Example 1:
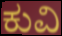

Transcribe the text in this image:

ಕುವಿ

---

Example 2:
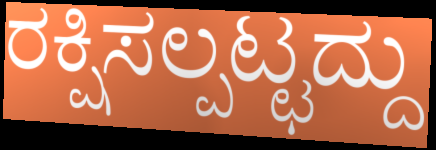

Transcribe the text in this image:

ರಕ್ಷಿಸಲ್ಪಟ್ಟದ್ದು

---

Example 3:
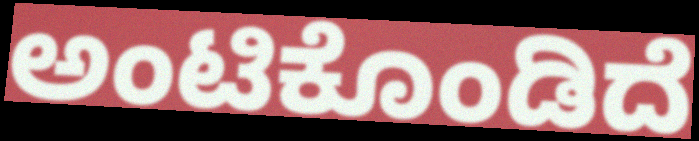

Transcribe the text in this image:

ಅಂಟಿಕೊಂಡಿದೆ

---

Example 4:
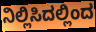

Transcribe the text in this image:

ನಿಲ್ಲಿಸಿದಲ್ಲಿಂದ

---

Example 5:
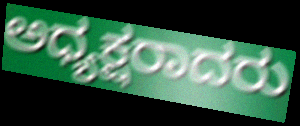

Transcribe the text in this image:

ಅಧ್ಯಕ್ಷರಾದರು